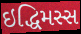
ઇદ્ધિમસ્સ